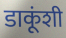
डाकूंशी